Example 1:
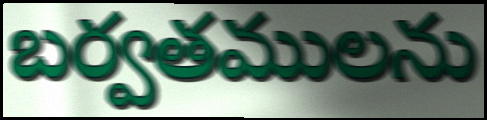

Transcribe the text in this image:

బర్వతములను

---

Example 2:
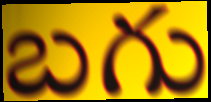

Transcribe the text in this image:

బగు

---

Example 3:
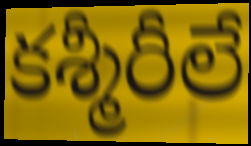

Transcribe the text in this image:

కశ్మీరీలే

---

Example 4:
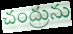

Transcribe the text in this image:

చంద్రును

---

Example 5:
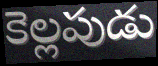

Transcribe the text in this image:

కెల్లపుడు